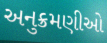
અનુક્રમણીઓ